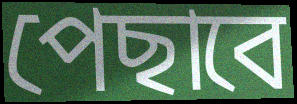
পেছাবে